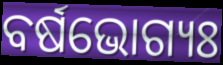
ବର୍ଷଭୋଗ୍ୟଃ